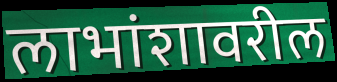
लाभांशावरील